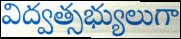
విద్వత్సభ్యులుగా